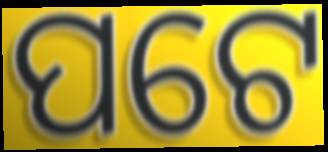
ପଟେ